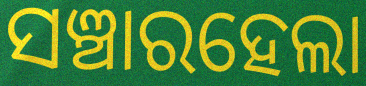
ସଞ୍ଚାରହେଲା